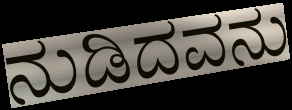
ನುಡಿದವನು